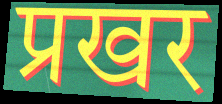
प्रखर